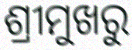
ଶ୍ରୀମୁଖରୁ